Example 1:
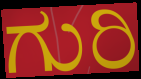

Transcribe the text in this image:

ಗುರಿ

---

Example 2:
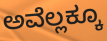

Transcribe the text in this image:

ಅವೆಲ್ಲಕ್ಕೂ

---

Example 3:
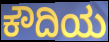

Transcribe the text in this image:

ಕೌದಿಯ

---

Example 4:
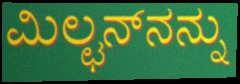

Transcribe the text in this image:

ಮಿಲ್ಟನ್‌ನನ್ನು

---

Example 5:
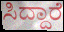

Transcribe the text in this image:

ಸಿದ್ದಾರೆ